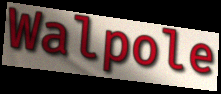
Walpole